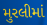
મુરલીમાં